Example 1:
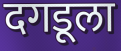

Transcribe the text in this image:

दगडूला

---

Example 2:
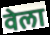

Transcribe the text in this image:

वेला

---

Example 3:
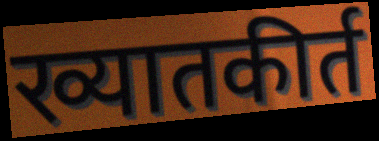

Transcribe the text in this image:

ख्यातकीर्त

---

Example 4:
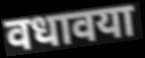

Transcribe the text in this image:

वधावया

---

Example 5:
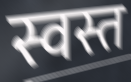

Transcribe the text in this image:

स्वस्त